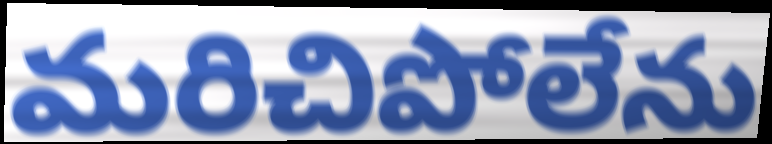
మరిచిపోలేను